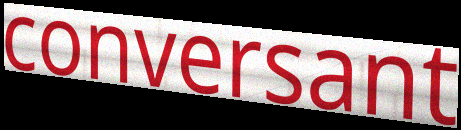
conversant